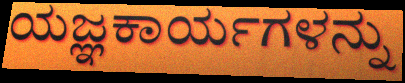
ಯಜ್ಞಕಾರ್ಯಗಳನ್ನು